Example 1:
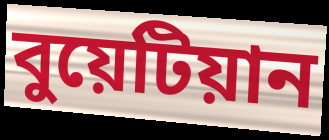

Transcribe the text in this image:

বুয়েটিয়ান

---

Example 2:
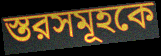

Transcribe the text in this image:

স্তরসমূহকে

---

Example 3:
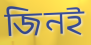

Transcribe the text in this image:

জিনই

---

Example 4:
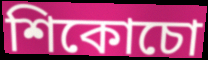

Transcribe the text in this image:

শিকোচো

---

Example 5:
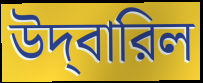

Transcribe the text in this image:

উদ্‌বারিল